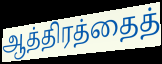
ஆத்திரத்தைத்